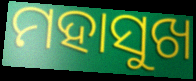
ମହାସୁଖ